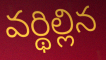
వర్థిల్లిన